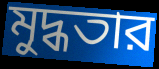
মুদ্ধতার